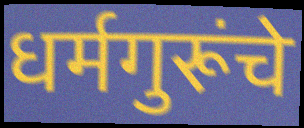
धर्मगुरूंचे